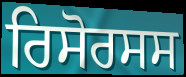
ਰਿਸੋਰਸਸ